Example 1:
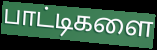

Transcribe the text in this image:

பாட்டிகளை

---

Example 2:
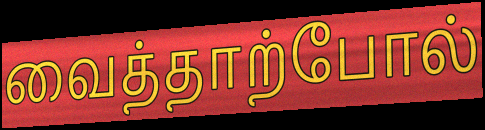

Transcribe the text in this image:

வைத்தாற்போல்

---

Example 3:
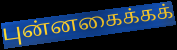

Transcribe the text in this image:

புன்னகைக்கக்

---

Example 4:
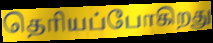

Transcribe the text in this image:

தெரியப்போகிறது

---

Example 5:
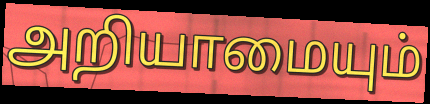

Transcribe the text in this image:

அறியாமையும்